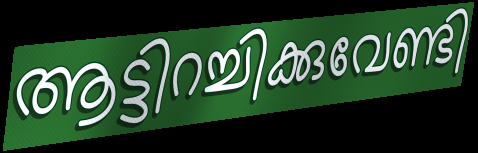
ആട്ടിറച്ചിക്കുവേണ്ടി